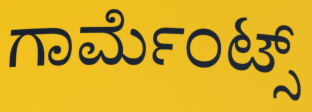
ಗಾರ್ಮೆಂಟ್ಸ್